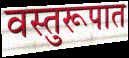
वस्तुरूपात